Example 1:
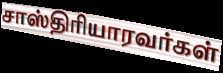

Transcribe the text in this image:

சாஸ்திரியாரவர்கள்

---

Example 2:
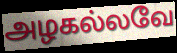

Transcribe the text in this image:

அழகல்லவே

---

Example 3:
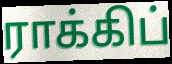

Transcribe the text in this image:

ராக்கிப்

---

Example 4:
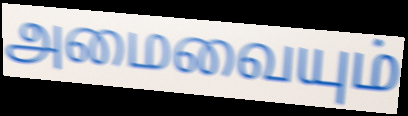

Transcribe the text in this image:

அமைவையும்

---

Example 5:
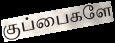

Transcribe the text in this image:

குப்பைகளே